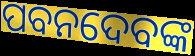
ପବନଦେବଙ୍କ